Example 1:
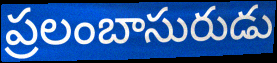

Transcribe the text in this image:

ప్రలంబాసురుడు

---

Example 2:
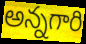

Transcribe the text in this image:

అన్నగారి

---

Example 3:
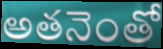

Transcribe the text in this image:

అతనెంతో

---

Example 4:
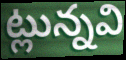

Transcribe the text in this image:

ట్లున్నవి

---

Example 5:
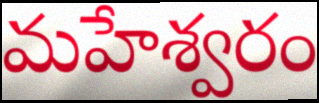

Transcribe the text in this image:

మహేశ్వరం